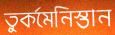
তুৰ্কমেনিস্তান